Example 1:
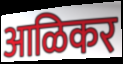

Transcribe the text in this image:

आळिकर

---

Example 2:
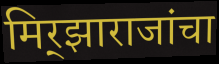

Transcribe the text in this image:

मिर्झाराजांचा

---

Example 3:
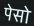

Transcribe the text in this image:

पेसो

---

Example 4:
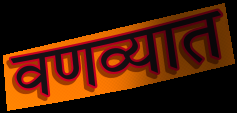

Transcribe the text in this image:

वणव्यात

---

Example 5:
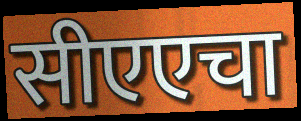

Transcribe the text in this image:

सीएएचा